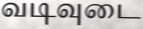
வடிவுடை